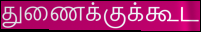
துணைக்குக்கூட